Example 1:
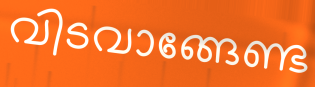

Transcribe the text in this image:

വിടവാങ്ങേണ്ട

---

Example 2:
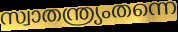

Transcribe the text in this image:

സ്വാതന്ത്ര്യംതന്നെ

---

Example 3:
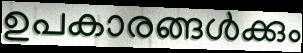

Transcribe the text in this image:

ഉപകാരങ്ങൾക്കും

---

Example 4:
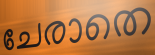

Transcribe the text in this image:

ചേരാതെ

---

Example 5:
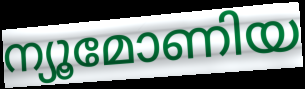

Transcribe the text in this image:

ന്യൂമോണിയ